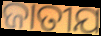
ଜାତୀଯ